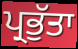
ਪ੍ਰਭੁੱਤਾ